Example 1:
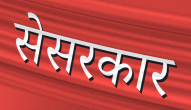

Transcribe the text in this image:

सेसरकार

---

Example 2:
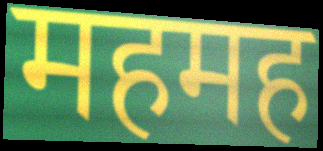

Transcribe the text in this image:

महमह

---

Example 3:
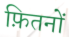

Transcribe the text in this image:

फ़ितनों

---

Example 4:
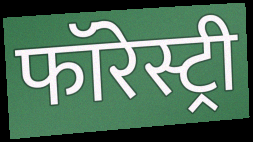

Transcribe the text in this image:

फॉरेस्ट्री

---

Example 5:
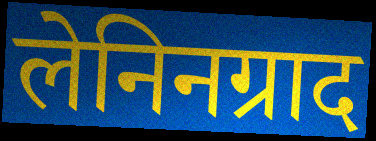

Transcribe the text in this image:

लेनिनग्राद